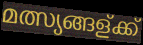
മത്സ്യങ്ങള്ക്ക്